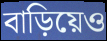
বাড়িয়েও